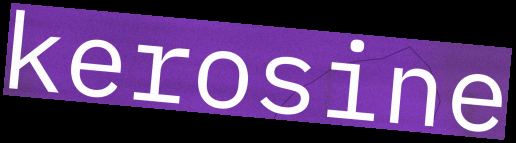
kerosine